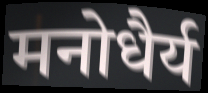
मनोधैर्य